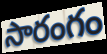
సారంగం